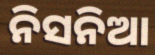
ନିସନିଆ